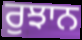
ਰੁਝਾਨ